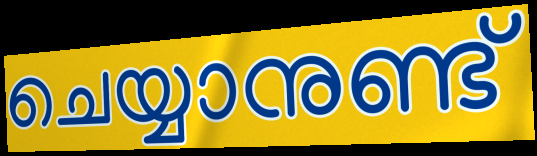
ചെയ്യാനുണ്ട്